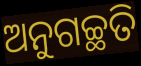
ଅନୁଗଚ୍ଛତି